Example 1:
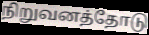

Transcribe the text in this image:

நிறுவனத்தோடு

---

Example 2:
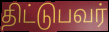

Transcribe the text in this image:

திட்டுபவர்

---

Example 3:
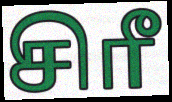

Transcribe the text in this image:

சிரீ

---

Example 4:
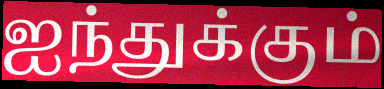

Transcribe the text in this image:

ஐந்துக்கும்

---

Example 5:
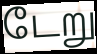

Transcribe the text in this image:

டேறு